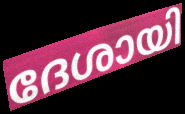
ദേശായി